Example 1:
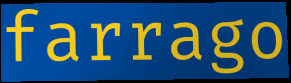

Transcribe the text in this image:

farrago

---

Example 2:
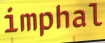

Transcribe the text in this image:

imphal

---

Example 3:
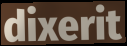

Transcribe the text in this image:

dixerit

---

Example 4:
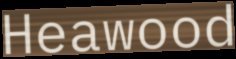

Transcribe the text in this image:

Heawood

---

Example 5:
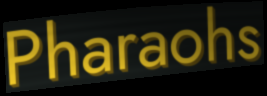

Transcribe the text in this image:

Pharaohs